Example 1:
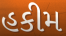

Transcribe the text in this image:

હકીમ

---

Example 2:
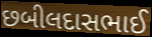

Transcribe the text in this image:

છબીલદાસભાઈ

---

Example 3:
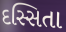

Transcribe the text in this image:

દસ્સિતા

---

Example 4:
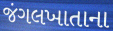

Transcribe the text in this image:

જંગલખાતાના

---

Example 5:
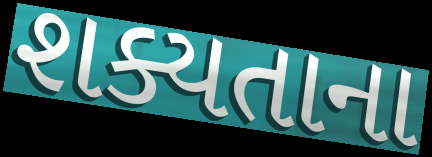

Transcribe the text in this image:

શક્યતાના